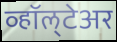
व्हॉल्टेअर